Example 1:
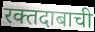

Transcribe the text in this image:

रक्तदाबाची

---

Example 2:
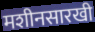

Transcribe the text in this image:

मशीनसारखी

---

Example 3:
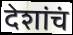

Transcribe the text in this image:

देशांचं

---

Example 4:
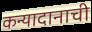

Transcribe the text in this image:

कन्यादानाची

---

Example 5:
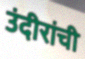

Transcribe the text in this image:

उंदीरांची